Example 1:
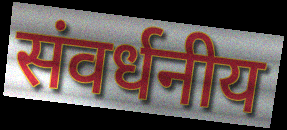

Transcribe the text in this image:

संवर्धनीय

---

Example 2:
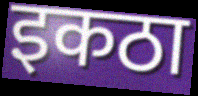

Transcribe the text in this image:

इकठा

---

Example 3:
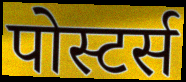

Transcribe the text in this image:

पोस्टर्स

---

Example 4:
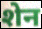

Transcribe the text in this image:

शेन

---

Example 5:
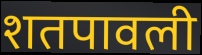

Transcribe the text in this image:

शतपावली